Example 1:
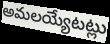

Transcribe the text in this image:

అమలయ్యేటట్లు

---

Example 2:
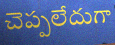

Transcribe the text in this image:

చెప్పలేదుగా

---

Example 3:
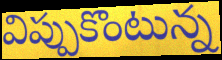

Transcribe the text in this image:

విప్పుకొంటున్న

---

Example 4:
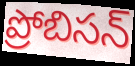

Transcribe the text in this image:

ప్రోబిసన్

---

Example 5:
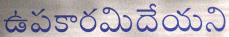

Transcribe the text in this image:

ఉపకారమిదేయని